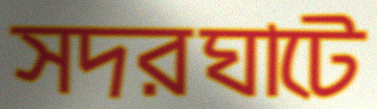
সদরঘাটে